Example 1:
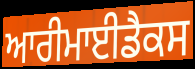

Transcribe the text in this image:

ਆਰੀਮਾਈਡੈਕਸ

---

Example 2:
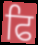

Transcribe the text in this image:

ਫਿ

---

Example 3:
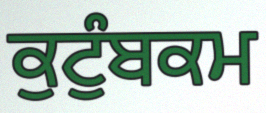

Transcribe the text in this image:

ਕੁਟੁੰਬਕਮ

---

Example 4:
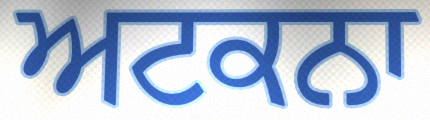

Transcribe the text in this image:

ਅਟਕਨਾ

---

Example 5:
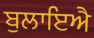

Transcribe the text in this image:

ਬੁਲਾਇਐ